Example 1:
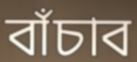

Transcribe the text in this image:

বাঁচাব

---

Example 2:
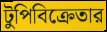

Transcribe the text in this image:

টুপিবিক্রেতার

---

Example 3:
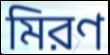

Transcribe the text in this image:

মিরণ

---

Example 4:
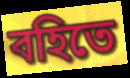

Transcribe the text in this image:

বহিতে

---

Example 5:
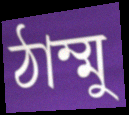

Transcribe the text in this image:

ঠাম্মু